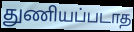
துணியப்படாத